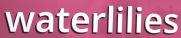
waterlilies